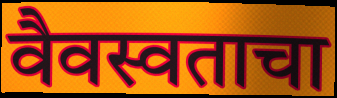
वैवस्वताचा